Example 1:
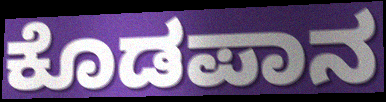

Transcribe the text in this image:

ಕೊಡಪಾನ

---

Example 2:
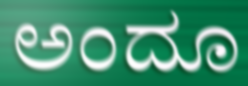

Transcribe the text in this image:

ಅಂದೂ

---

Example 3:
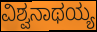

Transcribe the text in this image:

ವಿಶ್ವನಾಥಯ್ಯ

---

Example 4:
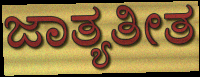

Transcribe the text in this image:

ಜಾತ್ಯತೀತ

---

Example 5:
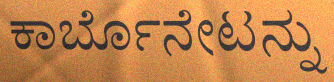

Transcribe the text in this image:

ಕಾರ್ಬೊನೇಟನ್ನು